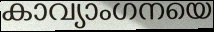
കാവ്യാംഗനയെ